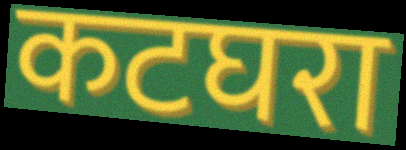
कटघरा